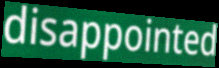
disappointed